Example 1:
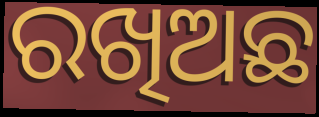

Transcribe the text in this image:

ରଖିଅଛ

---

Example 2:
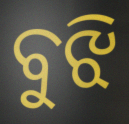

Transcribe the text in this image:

ବୁଝି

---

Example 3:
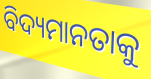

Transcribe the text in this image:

ବିଦ୍ୟମାନତାକୁ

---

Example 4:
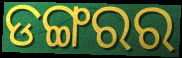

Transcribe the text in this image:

ଡଙ୍ଗରର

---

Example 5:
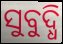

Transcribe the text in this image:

ସୁବୁଦ୍ଧି